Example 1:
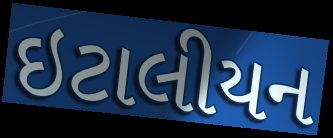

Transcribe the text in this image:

ઇટાલીયન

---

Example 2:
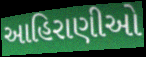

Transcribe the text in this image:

આહિરાણીઓ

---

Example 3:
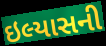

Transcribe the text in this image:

ઇલ્યાસની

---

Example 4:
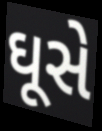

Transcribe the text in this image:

ઘૂસે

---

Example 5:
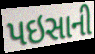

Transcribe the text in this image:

પઇસાની